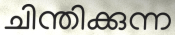
ചിന്തിക്കുന്ന